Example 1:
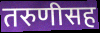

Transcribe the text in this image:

तरुणीसह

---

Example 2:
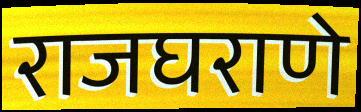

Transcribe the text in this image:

राजघराणे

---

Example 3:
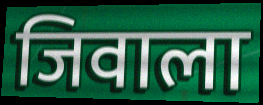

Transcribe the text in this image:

जिवाला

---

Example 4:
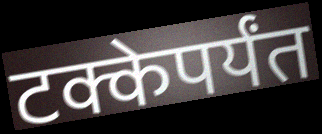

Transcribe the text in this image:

टक्केपर्यंत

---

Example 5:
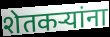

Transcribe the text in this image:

शेतकऱ्यांना